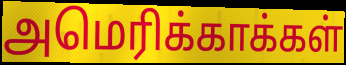
அமெரிக்காக்கள்